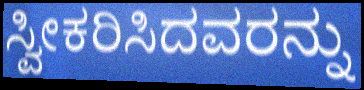
ಸ್ವೀಕರಿಸಿದವರನ್ನು